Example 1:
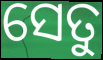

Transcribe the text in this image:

ସେତୁ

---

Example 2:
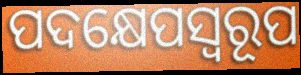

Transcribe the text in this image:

ପଦକ୍ଷେପସ୍ୱରୂପ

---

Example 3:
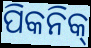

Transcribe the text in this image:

ପିକନିକ୍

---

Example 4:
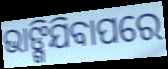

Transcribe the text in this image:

ଭାଙ୍ଗିଯିବାପରେ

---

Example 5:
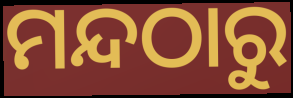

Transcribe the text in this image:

ମନ୍ଦଠାରୁ